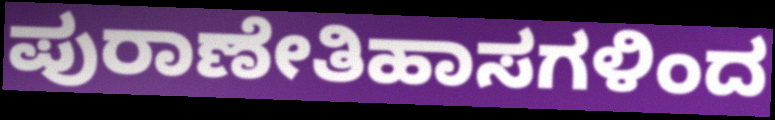
ಪುರಾಣೇತಿಹಾಸಗಳಿಂದ